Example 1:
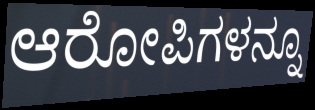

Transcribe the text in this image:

ಆರೋಪಿಗಳನ್ನೂ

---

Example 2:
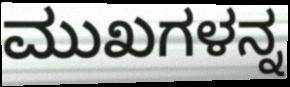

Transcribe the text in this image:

ಮುಖಗಳನ್ನ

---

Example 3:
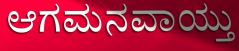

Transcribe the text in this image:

ಆಗಮನವಾಯ್ತು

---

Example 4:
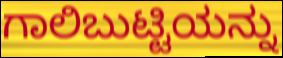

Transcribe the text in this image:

ಗಾಲಿಬುಟ್ಟಿಯನ್ನು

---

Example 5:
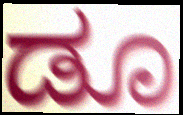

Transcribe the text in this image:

ಡೂ